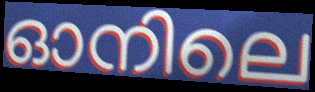
ഓനിലെ